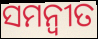
ସମନ୍ଵୀତ